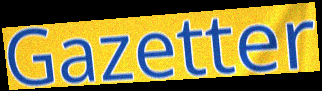
Gazetter